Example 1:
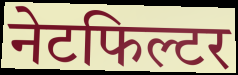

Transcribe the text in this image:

नेटफिल्टर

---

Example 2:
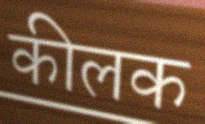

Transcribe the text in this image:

कीलक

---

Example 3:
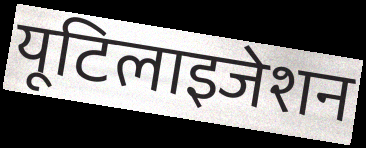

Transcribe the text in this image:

यूटिलाइजेशन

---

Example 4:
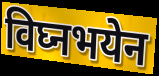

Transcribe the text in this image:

विघ्नभयेन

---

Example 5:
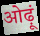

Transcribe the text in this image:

ओढ़ूं